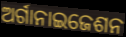
ଅର୍ଗାନାଇଜେଶନ